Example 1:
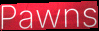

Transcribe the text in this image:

Pawns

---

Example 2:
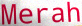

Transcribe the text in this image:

Merah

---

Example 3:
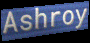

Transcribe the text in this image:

Ashroy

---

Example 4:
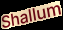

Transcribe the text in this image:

Shallum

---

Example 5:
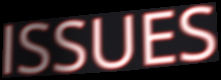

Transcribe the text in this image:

ISSUES